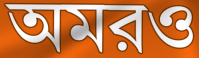
অমরও